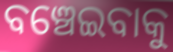
ବଞ୍ଚେଇବାକୁ